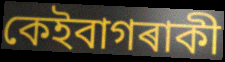
কেইবাগৰাকী